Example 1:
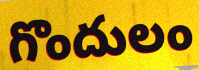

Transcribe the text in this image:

గొందులం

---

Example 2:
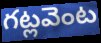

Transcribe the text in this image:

గట్లవెంట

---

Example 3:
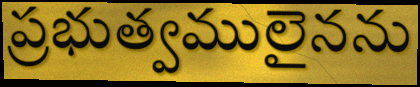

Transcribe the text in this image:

ప్రభుత్వములైనను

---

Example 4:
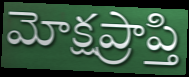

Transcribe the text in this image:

మోక్షప్రాప్తి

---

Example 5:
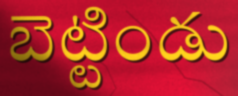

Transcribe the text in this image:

బెట్టిండు